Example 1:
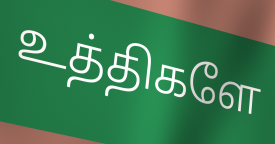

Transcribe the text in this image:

உத்திகளே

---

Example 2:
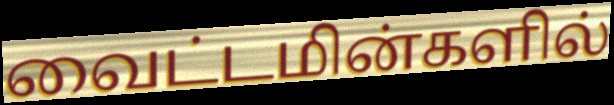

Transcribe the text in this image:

வைட்டமின்களில்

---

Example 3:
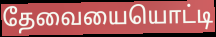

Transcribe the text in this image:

தேவையையொட்டி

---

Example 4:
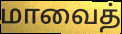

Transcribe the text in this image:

மாவைத்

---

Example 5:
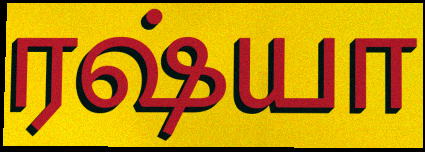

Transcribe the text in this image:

ரஷ்யா